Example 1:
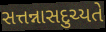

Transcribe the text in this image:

સત્તન્નાસદુચ્યતે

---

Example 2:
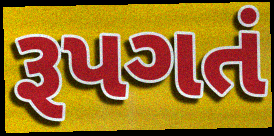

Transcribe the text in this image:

રૂપગતં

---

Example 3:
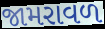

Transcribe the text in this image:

જામરાવળ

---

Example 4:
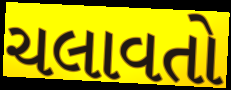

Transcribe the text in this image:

ચલાવતો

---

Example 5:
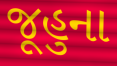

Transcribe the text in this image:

જૂહુના